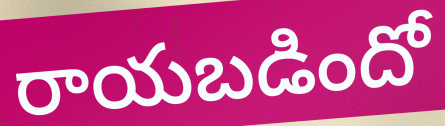
రాయబడిందో